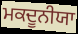
ਮਕਦੂਨੀਯਾ